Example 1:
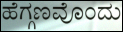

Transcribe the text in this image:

ಹೆಗ್ಗಣವೊಂದು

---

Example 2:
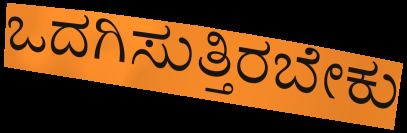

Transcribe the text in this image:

ಒದಗಿಸುತ್ತಿರಬೇಕು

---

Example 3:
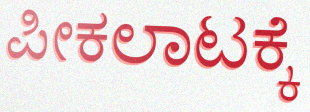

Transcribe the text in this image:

ಪೀಕಲಾಟಕ್ಕೆ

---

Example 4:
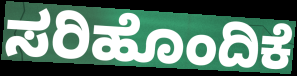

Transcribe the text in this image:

ಸರಿಹೊಂದಿಕೆ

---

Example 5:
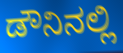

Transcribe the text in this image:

ಡೌನಿನಲ್ಲಿ